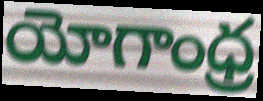
యోగాంధ్ర